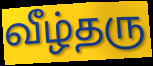
வீழ்தரு